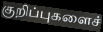
குறிப்புகளைச்